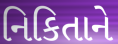
નિકિતાને